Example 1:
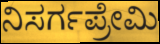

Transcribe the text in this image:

ನಿಸರ್ಗಪ್ರೇಮಿ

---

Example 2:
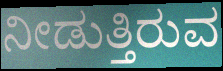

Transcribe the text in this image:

ನೀಡುತ್ತಿರುವ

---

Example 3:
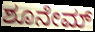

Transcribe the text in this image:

ಶೂನೇಮ್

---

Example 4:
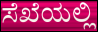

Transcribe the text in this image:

ಸೆಖೆಯಲ್ಲಿ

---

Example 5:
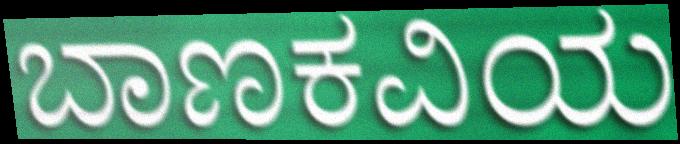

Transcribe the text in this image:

ಬಾಣಕವಿಯ